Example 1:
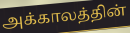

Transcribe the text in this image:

அக்காலத்தின்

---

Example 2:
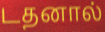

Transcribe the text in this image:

டதனால்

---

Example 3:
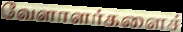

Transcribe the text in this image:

வேளாளர்களைச்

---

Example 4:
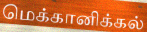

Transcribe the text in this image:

மெக்கானிக்கல்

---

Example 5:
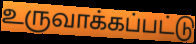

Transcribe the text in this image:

உருவாக்கப்பட்டு